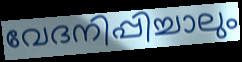
വേദനിപ്പിച്ചാലും